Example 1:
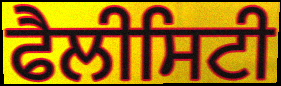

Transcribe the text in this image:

ਫੈਲੀਸਿਟੀ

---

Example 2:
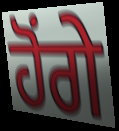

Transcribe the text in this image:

ਹੋਂਗੇ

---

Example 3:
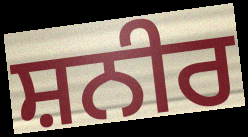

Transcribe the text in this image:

ਸ਼ਨੀਰ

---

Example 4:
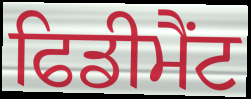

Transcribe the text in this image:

ਫਿਡੀਮੈਂਟ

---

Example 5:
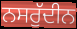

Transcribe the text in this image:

ਨਸਰੁੱਦੀਨ